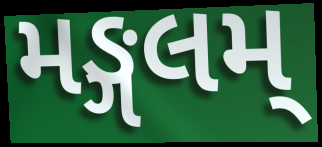
મઙ્ગલમ્